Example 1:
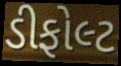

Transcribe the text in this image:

ડીફોલ્ટ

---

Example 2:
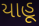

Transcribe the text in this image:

યાહૂ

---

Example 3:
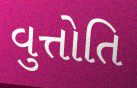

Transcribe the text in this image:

વુત્તોતિ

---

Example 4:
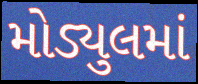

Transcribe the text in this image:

મોડ્યુલમાં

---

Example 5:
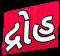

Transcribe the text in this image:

દ્રોહ